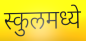
स्कुलमध्ये